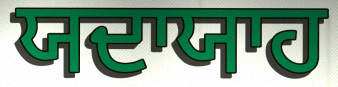
ਯਦਾਯਾਹ